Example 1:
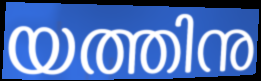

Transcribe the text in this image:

യത്തിനു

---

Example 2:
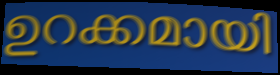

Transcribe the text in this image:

ഉറക്കമായി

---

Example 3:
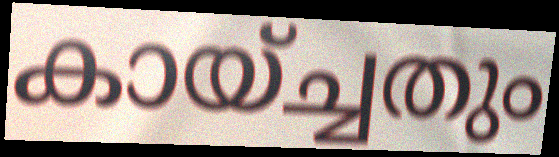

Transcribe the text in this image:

കായ്ച്ചതും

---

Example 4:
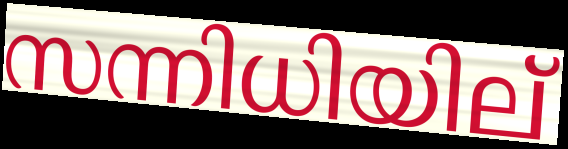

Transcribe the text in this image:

സന്നിധിയില്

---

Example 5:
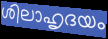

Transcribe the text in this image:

ശിലാഹൃദയം